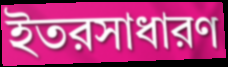
ইতরসাধারণ